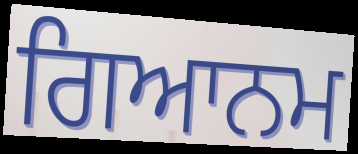
ਗਿਆਨਮ